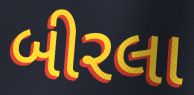
બીરલા